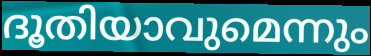
ദൂതിയാവുമെന്നും